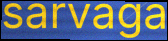
sarvaga